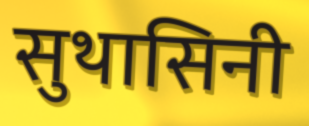
सुथासिनी